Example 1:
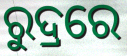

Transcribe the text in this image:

ରୁଦ୍ରରେ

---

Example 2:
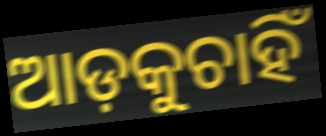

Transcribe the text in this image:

ଆଡ଼କୁଚାହିଁ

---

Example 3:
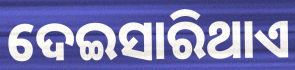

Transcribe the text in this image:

ଦେଇସାରିଥାଏ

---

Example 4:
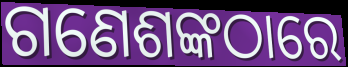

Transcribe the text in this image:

ଗଣେଶଙ୍କଠାରେ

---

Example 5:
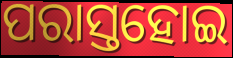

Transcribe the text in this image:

ପରାସ୍ତହୋଇ